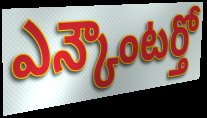
ఎన్కౌంటర్తో